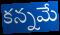
కన్నమే